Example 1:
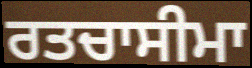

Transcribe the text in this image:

ਰਤਚਾਸੀਮਾ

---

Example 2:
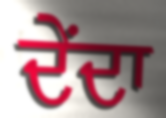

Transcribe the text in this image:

ਦੇਂਦਾ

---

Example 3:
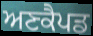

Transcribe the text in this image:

ਅਣਕੈਪਡ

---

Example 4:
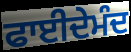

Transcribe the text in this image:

ਫਾਈਦੇਮੰਦ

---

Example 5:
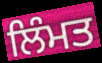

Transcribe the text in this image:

ਲਿੰਮਤ